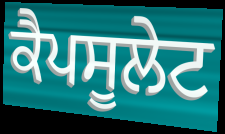
ਕੈਪਸੂਲੇਟ